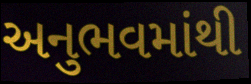
અનુભવમાંથી